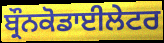
ਬ੍ਰੌਨਕੋਡਾਈਲੇਟਰ